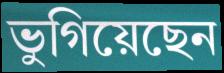
ভুগিয়েছেন